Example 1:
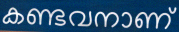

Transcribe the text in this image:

കണ്ടവനാണ്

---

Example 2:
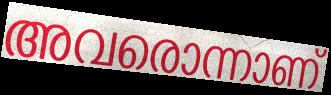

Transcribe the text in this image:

അവരൊന്നാണ്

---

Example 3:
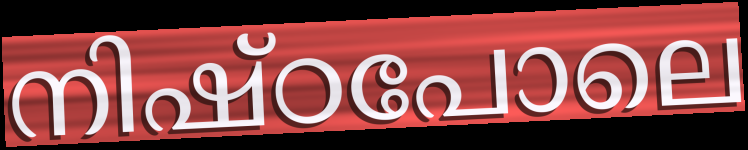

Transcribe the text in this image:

നിഷ്ഠപോലെ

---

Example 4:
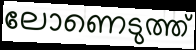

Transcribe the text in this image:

ലോണെടുത്ത്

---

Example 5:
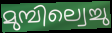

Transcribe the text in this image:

മുമ്പില്വെച്ചു